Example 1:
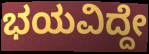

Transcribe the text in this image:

ಭಯವಿದ್ದೇ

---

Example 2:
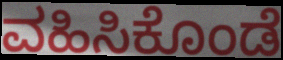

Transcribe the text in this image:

ವಹಿಸಿಕೊಂಡೆ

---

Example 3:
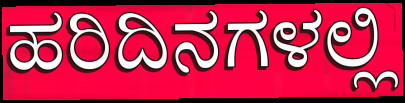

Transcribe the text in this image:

ಹರಿದಿನಗಳಲ್ಲಿ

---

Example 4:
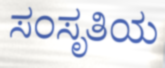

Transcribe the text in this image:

ಸಂಸೃತಿಯ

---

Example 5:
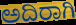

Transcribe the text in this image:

ಅದಿರಾಗಿ